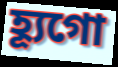
হ্যূগো